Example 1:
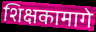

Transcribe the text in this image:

शिक्षकामागे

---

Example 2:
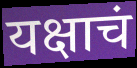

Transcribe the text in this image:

यक्षाचं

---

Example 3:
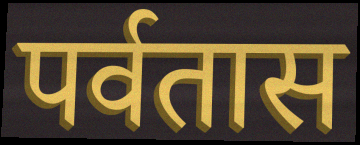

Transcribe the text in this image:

पर्वतास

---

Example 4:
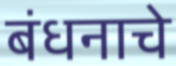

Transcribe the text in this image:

बंधनाचे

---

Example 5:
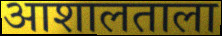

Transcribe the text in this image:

आशालताला